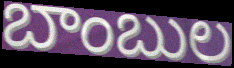
బాంబుల